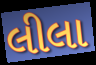
લીલા